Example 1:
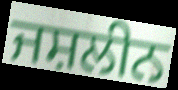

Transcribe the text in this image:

ਜਸ਼ਲੀਨ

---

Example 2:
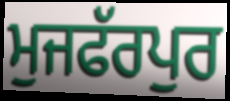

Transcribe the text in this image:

ਮੁਜਫੱਰਪੁਰ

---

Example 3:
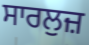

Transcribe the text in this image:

ਸਾਰਲੁਜ਼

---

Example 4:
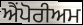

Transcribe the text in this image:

ਐਂਪੋਰੀਅਮ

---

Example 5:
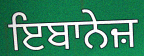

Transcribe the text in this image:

ਇਬਾਨੇਜ਼